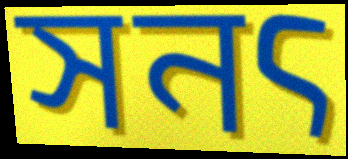
সনৎ